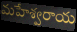
మహేశ్వరాయ